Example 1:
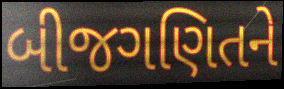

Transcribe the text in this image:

બીજગણિતને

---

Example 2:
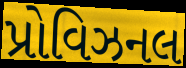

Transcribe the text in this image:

પ્રોવિઝનલ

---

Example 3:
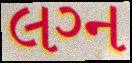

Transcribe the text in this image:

લગ્‍ન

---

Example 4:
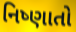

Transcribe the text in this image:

નિષ્ણાતો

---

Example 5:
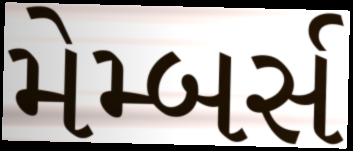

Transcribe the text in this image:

મેમ્બર્સ